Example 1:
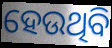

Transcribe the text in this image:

ହେଉଥିବି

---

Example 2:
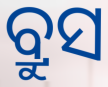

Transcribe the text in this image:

ବ୍ରୁସ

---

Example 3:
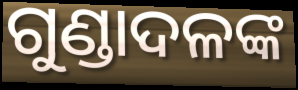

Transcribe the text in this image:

ଗୁଣ୍ଡାଦଳଙ୍କ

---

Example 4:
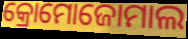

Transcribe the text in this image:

କ୍ରୋମୋଜୋମାଲ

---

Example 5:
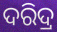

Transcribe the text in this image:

ଦରିଦ୍ର